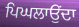
ਪਿਘਲਾਉਂਦਾ